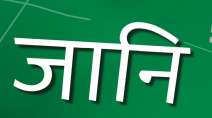
जानि